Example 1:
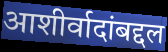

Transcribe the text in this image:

आशीर्वादांबद्दल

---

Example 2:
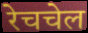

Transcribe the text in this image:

रेचचेल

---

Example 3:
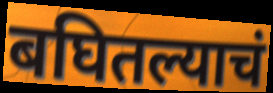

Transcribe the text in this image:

बघितल्याचं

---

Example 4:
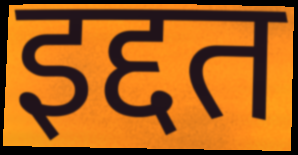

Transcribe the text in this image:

इद्दत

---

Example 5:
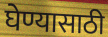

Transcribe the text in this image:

घेण्यासाठी